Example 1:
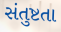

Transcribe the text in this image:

સંતુષ્ટતા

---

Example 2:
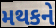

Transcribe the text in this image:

મથકને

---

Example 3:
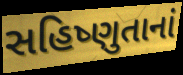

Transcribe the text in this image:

સહિષ્ણુતાનાં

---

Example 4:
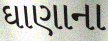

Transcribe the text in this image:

ઘાણાના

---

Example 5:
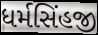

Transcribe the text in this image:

ધર્મસિંહજી